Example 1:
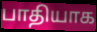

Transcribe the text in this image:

பாதியாக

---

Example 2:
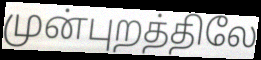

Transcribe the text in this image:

முன்புறத்திலே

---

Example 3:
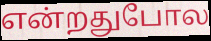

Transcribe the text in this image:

என்றதுபோல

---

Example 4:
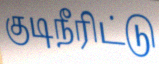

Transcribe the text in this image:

குடிநீரிட்டு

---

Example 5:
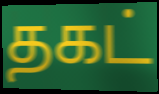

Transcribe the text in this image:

தகட்